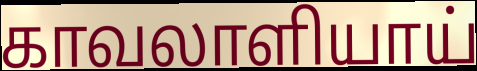
காவலாளியாய்